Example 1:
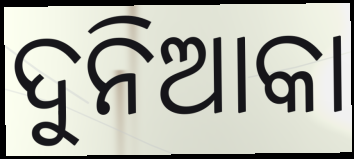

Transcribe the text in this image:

ଦୁନିଆକା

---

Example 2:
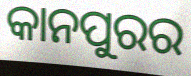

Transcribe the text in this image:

କାନପୁରର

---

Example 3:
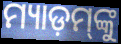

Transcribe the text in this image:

ମ୍ୟାଡ଼ମ୍‌ଙ୍କୁ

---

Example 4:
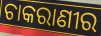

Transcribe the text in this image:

ଚାକରାଣୀର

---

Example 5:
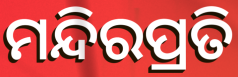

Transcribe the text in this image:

ମନ୍ଦିରପ୍ରତି